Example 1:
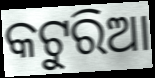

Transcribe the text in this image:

କଟୁରିଆ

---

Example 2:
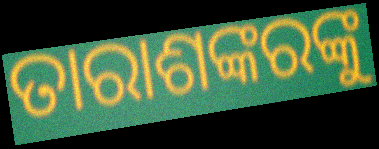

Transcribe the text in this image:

ତାରାଶଙ୍କରଙ୍କୁ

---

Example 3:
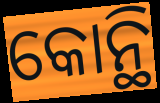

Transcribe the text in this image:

କୋନ୍ଥି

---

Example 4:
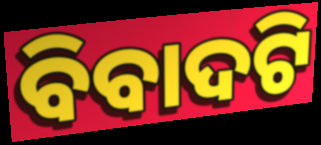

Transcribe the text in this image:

ବିବାଦଟି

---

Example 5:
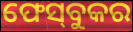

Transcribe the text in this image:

ଫେସ୍‌ବୁକର